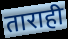
ताराही